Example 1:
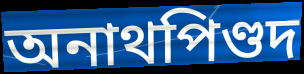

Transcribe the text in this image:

অনাথপিণ্ডদ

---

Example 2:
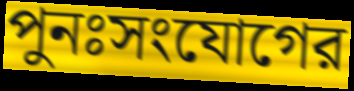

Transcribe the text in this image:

পুনঃসংযোগের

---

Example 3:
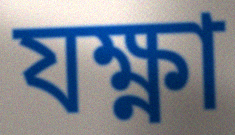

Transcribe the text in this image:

যক্ষ্ণা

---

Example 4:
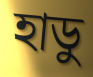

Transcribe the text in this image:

হাডু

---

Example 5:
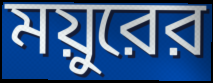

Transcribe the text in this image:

ময়ুরের